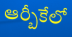
ఆర్బీకేలో